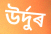
উৰ্দুৰ